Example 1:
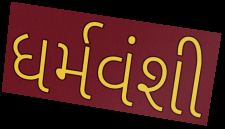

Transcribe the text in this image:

ધર્મવંશી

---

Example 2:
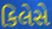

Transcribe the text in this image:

કિલેસે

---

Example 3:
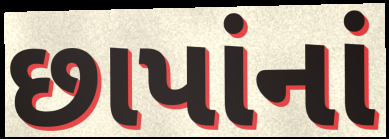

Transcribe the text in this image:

છાપાંનાં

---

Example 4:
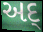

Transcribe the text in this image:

અદ્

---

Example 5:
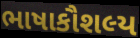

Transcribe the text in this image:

ભાષાકૌશલ્ય